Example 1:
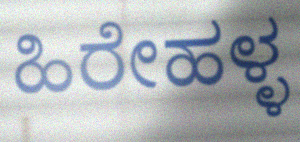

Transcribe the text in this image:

ಹಿರೇಹಳ್ಳ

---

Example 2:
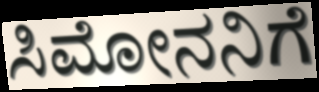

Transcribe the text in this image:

ಸಿಮೋನನಿಗೆ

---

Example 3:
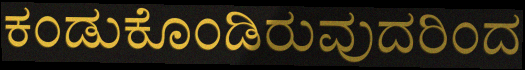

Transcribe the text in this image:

ಕಂಡುಕೊಂಡಿರುವುದರಿಂದ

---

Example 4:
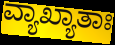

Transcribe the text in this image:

ವ್ಯಾಖ್ಯಾತಾಃ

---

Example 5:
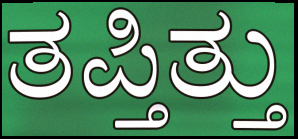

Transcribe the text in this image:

ತಪ್ತಿತ್ತು